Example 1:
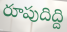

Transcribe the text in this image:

రూపుదిద్ది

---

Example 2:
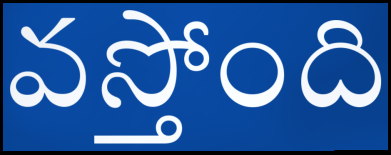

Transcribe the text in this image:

వస్తోంది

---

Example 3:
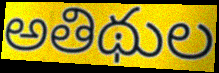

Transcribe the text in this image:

అతిథుల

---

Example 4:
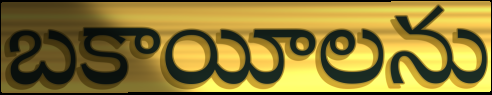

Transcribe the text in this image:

బకాయీలను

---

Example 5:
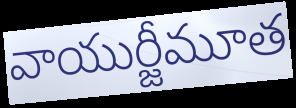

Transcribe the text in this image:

వాయుర్జీమూత